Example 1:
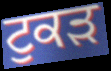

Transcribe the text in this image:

ਟੁਕੜ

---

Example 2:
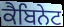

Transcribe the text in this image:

ਕੈਬਿਨੇਟ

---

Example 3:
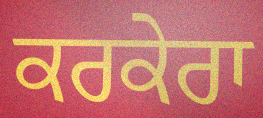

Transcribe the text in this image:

ਕਰਕੇਰਾ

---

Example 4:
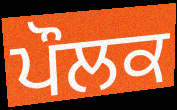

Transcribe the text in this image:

ਪੌਲਕ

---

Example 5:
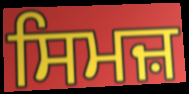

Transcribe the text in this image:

ਸਿਮਜ਼